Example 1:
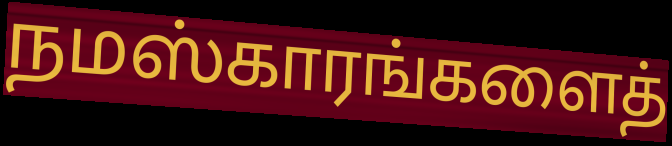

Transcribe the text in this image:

நமஸ்காரங்களைத்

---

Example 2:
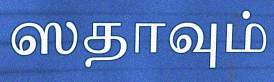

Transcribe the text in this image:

ஸதாவும்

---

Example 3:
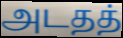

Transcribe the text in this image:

அடதத்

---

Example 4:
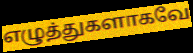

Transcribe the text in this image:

எழுத்துகளாகவே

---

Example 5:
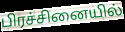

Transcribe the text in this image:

பிரச்சினையில்